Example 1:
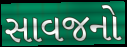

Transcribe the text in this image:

સાવજનો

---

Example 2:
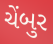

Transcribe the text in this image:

ચેંબુર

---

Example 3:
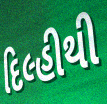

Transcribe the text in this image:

દિલ્હીથી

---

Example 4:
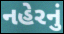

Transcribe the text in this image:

નહેરનું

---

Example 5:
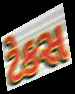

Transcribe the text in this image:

ટેકસ